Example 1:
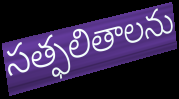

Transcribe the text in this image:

సత్ఫలితాలను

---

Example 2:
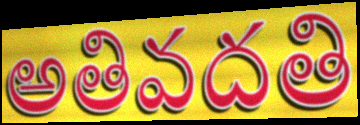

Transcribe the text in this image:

అతివదతి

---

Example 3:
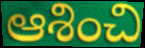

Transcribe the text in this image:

ఆశించి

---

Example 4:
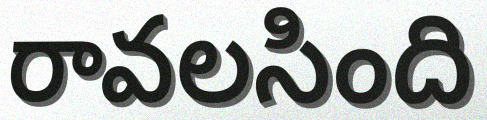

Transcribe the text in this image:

రావలసింది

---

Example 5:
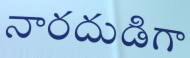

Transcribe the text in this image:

నారదుడిగా